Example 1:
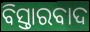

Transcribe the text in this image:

ବିସ୍ତାରବାଦ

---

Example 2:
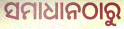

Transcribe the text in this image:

ସମାଧାନଠାରୁ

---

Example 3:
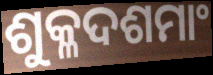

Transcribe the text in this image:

ଶୁକ୍ଳଦଶମାଂ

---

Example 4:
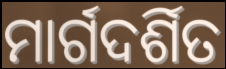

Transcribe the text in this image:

ମାର୍ଗଦର୍ଶିତ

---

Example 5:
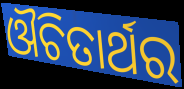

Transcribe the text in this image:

ଔଚିତାର୍ଥର